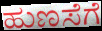
ಹುಣಸೆಗೆ